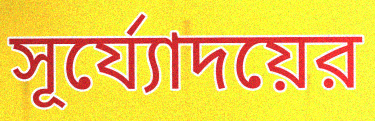
সূর্য্যোদয়ের